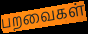
பறவைகள்